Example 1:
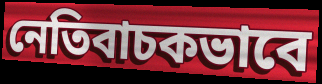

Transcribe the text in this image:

নেতিবাচকভাবে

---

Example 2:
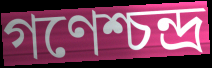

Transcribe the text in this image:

গণেশ্চন্দ্র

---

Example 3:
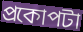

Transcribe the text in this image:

প্রকোপটা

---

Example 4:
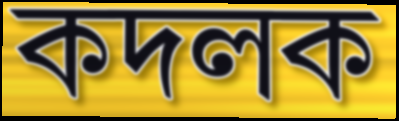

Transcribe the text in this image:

কদলক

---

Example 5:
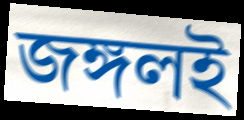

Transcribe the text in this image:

জঙ্গলই